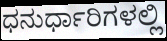
ಧನುರ್ಧಾರಿಗಳಲ್ಲಿ